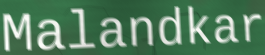
Malandkar